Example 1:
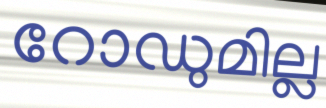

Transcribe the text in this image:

റോഡുമില്ല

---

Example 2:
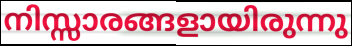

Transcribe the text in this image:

നിസ്സാരങ്ങളായിരുന്നു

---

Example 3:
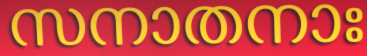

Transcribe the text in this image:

സനാതനാഃ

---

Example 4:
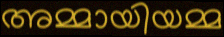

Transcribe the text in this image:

അമ്മായിയമ്മ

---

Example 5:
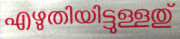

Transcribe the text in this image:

എഴുതിയിട്ടുള്ളതു്